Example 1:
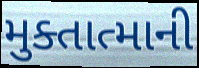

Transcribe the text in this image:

મુક્તાત્માની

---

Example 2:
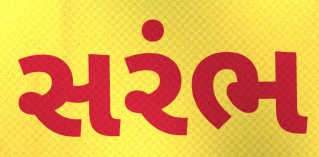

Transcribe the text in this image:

સરંભ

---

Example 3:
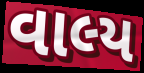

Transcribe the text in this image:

વાલ્ય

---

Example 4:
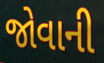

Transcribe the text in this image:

જોવાની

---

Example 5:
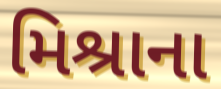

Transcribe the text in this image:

મિશ્રાના